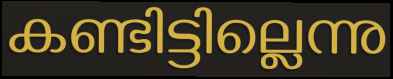
കണ്ടിട്ടില്ലെന്നു